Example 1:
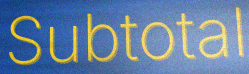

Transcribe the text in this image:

Subtotal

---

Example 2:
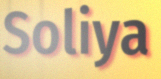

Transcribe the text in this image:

Soliya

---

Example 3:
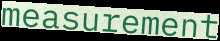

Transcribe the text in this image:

measurement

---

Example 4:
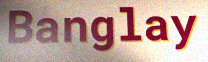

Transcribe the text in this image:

Banglay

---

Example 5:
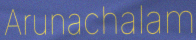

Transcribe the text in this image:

Arunachalam